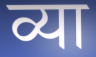
व्या